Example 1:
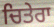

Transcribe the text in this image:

ਚਿਤੇਰਾ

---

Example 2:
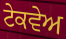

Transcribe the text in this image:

ਟੇਕਵੇਅ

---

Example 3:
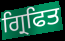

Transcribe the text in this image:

ਗ੍ਰਿਫਿਤ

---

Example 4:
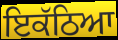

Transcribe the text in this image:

ਇਕੱਠਿਆ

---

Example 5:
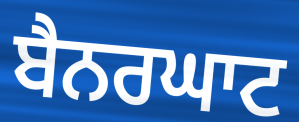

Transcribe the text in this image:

ਬੈਨਰਘਾਟ